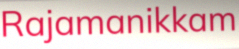
Rajamanikkam